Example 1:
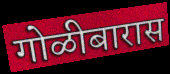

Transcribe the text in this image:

गोळीबारास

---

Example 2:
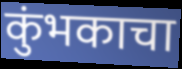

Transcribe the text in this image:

कुंभकाचा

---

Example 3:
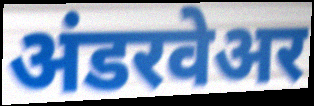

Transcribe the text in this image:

अंडरवेअर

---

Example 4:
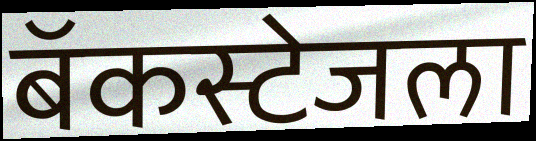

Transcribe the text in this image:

बॅकस्टेजला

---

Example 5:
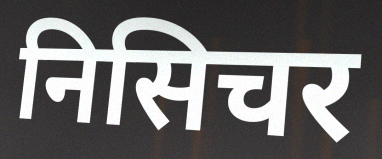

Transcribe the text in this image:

निसिचर